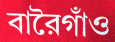
বারৈগাঁও